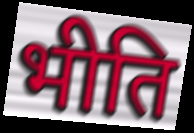
भीति